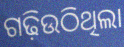
ଗଢ଼ିଉଠିଥିଲା